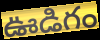
ఊడిగం